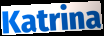
Katrina